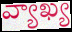
వ్యాఖ్య